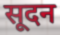
सूदन